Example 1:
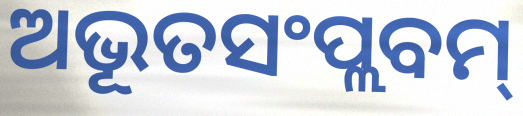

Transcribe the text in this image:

ଅଭୂତସଂପ୍ଲବମ୍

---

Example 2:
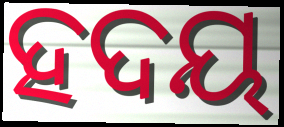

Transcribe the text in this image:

ହଦୟ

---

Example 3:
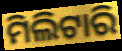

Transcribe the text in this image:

ମିଲିଟାରି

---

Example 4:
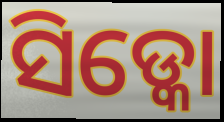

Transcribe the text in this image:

ସିଡ୍କୋ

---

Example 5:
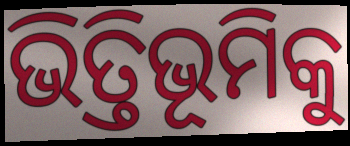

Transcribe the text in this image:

ଭିତ୍ତିଭୂମିକୁ